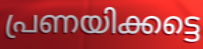
പ്രണയിക്കട്ടെ